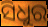
ସିଧୁର